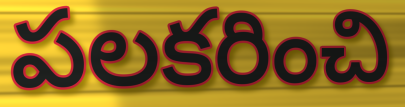
పలకరించి